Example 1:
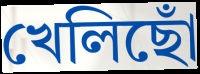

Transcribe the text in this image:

খেলিছোঁ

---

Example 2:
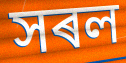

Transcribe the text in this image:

সৰল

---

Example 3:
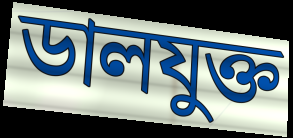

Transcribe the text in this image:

ডালযুক্ত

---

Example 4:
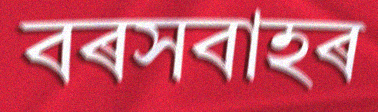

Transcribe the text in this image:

বৰসবাহৰ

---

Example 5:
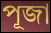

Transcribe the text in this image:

পূজা